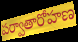
పర్వాతారోహణ